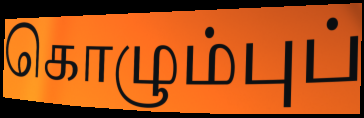
கொழும்புப்